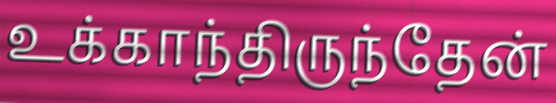
உக்காந்திருந்தேன்